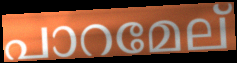
പാറമേല്